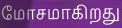
மோசமாகிறது